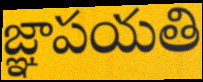
జ్ఞాపయతి